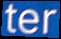
ter